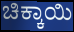
ಚಿಕ್ಕಾಯಿ